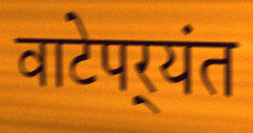
वाटेपर्यंत